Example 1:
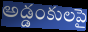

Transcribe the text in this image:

అడ్డంకులపై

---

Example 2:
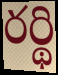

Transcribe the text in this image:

రర్థి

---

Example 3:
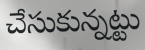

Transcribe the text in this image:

చేసుకున్నట్టు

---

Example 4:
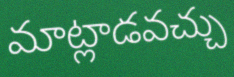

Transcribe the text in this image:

మాట్లాడవచ్చు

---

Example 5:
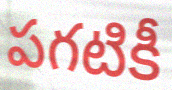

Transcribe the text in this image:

పగటికీ